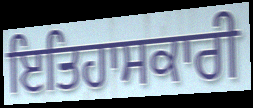
ਇਤਿਹਾਸਕਾਰੀ